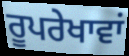
ਰੂਪਰੇਖਾਵਾਂ